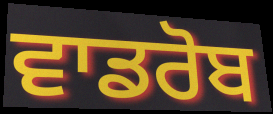
ਵਾਡਰੋਬ